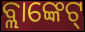
ବ୍ଲାଙ୍କେଟ୍